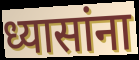
ध्यासांना